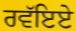
ਰਵੱਇਏ